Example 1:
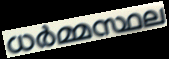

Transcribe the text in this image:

ധർമ്മസ്ഥല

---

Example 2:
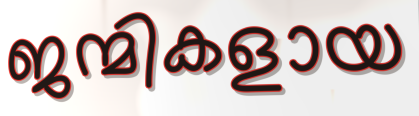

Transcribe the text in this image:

ജന്മികളായ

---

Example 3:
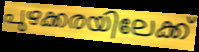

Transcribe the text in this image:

പുഴക്കരയിലേക്ക്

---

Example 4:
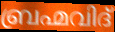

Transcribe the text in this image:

ബ്രഹ്മവിദ്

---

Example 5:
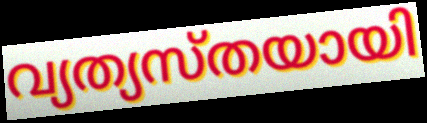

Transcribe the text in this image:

വ്യത്യസ്തയായി